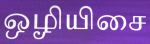
ஒழியிசை